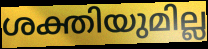
ശക്തിയുമില്ല